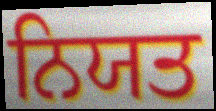
ਨਿਯਤ